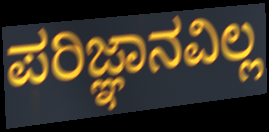
ಪರಿಜ್ಞಾನವಿಲ್ಲ